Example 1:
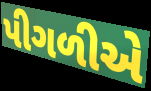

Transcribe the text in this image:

પીગળીએ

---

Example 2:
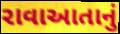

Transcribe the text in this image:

રાવાઆતાનું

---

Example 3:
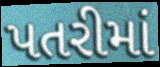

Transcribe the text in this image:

પતરીમાં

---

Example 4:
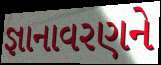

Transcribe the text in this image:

જ્ઞાનાવરણને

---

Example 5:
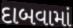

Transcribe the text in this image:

દાબવામાં